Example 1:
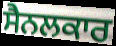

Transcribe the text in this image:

ਸੈਨਲਕਾਰ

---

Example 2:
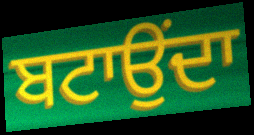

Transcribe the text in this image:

ਬਟਾਉਂਦਾ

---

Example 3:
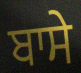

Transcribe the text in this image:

ਬਾਸੇ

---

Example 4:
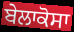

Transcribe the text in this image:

ਬੇਲਾਕੋਸਾ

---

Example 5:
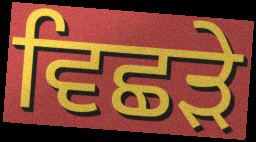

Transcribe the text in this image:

ਵਿਛੜੇ